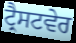
ਟ੍ਰੈਸਟਵੇਰ